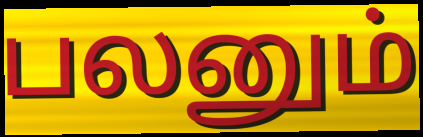
பலனும்